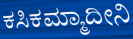
ಕಸಿಕಮ್ಮಾದೀನಿ